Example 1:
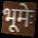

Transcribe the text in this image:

भूमेः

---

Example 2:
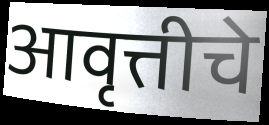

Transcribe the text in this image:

आवृत्तीचे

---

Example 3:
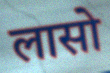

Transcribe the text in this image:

लासो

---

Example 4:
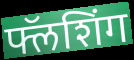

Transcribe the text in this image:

फ्लॅशिंग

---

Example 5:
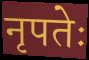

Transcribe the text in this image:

नृपतेः